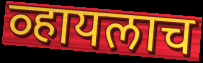
व्हायलाच